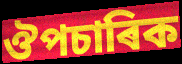
ঔপচাৰিক